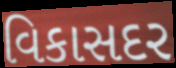
વિકાસદર